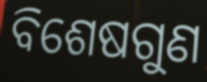
ବିଶେଷଗୁଣ